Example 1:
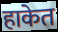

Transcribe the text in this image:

हाकेत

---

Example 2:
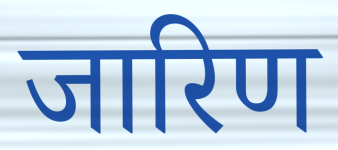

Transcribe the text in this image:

जारिण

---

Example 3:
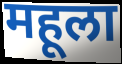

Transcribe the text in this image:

महूला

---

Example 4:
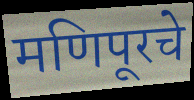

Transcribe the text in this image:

मणिपूरचे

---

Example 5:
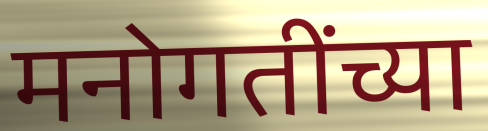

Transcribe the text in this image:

मनोगतींच्या